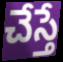
చేస్తే